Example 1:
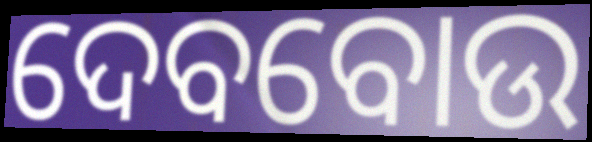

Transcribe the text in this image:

ଦେବବୋଉ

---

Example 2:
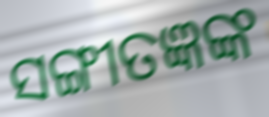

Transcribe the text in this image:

ସଙ୍ଗୀତଜ୍ଞଙ୍କ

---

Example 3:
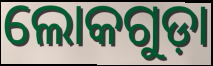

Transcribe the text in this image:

ଲୋକଗୁଡ଼ା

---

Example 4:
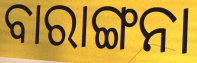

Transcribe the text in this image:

ବାରାଙ୍ଗନା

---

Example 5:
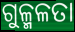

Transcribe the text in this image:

ଗୁଳ୍ମଳତା